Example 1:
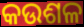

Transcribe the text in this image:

କଉଶଳ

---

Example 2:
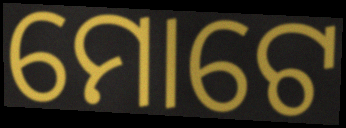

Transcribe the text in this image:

ମୋଟେ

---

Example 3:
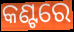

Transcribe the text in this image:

କଣ୍ଟରେ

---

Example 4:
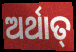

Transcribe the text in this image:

ଅର୍ଥାତ୍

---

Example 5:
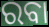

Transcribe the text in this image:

ରବା